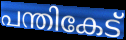
പന്തികേട്